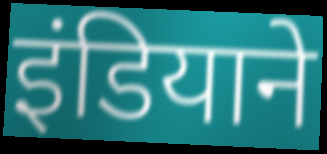
इंडियाने